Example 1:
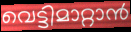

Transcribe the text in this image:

വെട്ടിമാറ്റാൻ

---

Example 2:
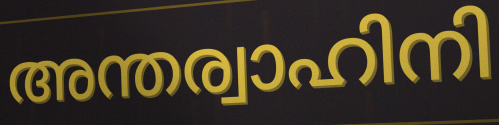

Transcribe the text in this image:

അന്തര്വാഹിനി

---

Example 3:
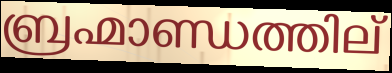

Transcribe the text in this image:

ബ്രഹ്മാണ്ഡത്തില്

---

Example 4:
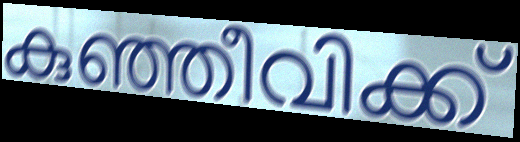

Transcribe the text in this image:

കുഞ്ഞീവിക്ക്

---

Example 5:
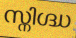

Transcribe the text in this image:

സ്നിഗ്ദ്ധ